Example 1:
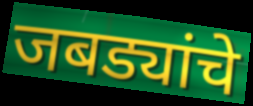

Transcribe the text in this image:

जबड्यांचे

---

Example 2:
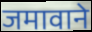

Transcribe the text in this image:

जमावाने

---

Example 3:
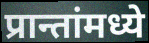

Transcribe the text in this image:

प्रान्तांमध्ये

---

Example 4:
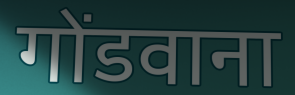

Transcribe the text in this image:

गोंडवाना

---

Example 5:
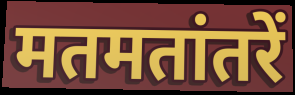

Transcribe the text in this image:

मतमतांतरें